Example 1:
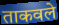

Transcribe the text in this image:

ताकवले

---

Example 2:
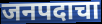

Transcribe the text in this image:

जनपदाचा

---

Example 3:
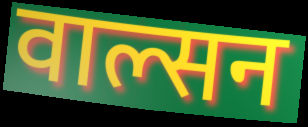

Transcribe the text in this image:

वाल्सन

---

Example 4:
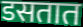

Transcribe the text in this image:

डसतात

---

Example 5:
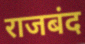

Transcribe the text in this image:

राजबंद